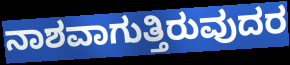
ನಾಶವಾಗುತ್ತಿರುವುದರ